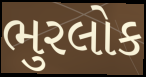
ભુરલોક